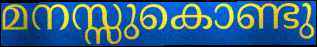
മനസ്സുകൊണ്ടു